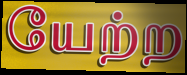
யேற்ற